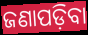
ଜଣାପଡ଼ିବା